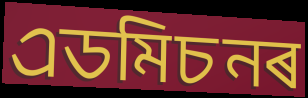
এডমিচনৰ